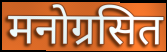
मनोग्रसित